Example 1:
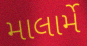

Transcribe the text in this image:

માલાર્મે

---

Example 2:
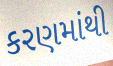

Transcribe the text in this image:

કરણમાંથી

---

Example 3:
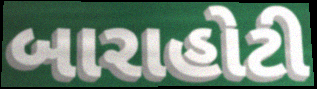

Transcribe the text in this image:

બારાહોટી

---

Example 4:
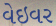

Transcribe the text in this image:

વેઇવર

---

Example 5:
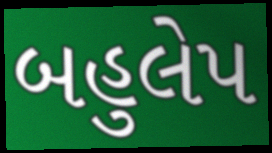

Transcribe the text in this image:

બહુલેપ